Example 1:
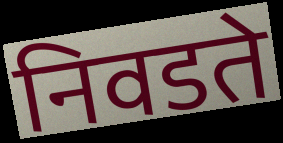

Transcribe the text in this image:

निवडते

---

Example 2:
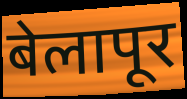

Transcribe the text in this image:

बेलापूर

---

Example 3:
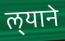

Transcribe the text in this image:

ल्याने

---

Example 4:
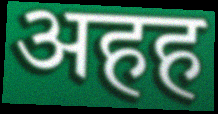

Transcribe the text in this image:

अहह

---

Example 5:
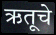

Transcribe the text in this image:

ऋतूचे